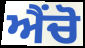
ਐਂਚੋ